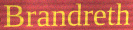
Brandreth